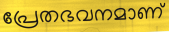
പ്രേതഭവനമാണ്